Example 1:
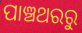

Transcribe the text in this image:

ପାଞ୍ଚଥରରୁ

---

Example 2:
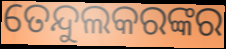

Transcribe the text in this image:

ତେନ୍ଦୁଲକରଙ୍କର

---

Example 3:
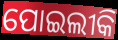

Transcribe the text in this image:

ପୋଇଲୀକି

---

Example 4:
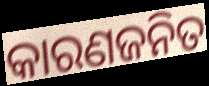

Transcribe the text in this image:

କାରଣଜନିତ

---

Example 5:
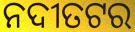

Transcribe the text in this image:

ନଦୀତଟର